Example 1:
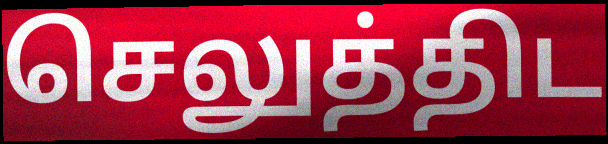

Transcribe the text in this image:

செலுத்திட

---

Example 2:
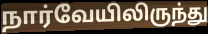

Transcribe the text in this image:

நார்வேயிலிருந்து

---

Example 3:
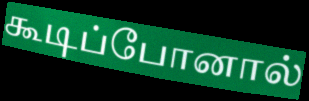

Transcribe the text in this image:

கூடிப்போனால்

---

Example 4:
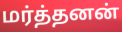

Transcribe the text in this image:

மர்த்தனன்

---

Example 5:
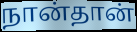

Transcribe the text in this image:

நான்தான்